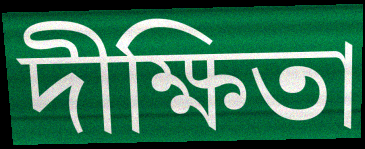
দীক্ষিতা